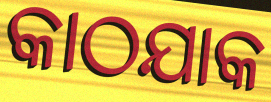
କାଠଯାକ